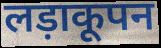
लड़ाकूपन